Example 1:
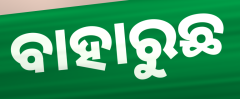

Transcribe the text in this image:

ବାହାରୁଛ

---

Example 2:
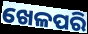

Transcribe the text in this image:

ଖେଳପରି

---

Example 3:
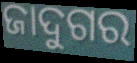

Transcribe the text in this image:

ଜାଦୁଗର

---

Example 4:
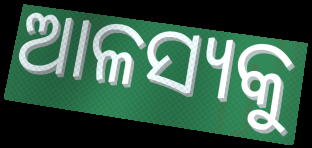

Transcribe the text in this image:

ଆଳସ୍ୟକୁ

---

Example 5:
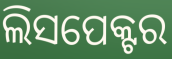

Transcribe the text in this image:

ଲିସପେକ୍ଟର